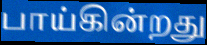
பாய்கின்றது